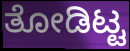
ತೋಡಿಟ್ಟ